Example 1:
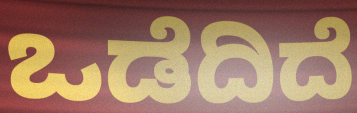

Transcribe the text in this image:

ಒಡೆದಿದೆ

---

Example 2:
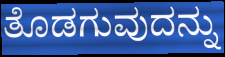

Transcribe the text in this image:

ತೊಡಗುವುದನ್ನು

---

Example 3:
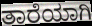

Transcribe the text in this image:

ತಾರೆಯಾಗಿ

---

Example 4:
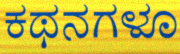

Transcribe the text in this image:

ಕಥನಗಳೂ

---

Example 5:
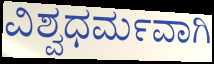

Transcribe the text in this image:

ವಿಶ್ವಧರ್ಮವಾಗಿ